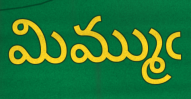
మిమ్ముఁ